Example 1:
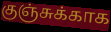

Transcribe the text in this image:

குஞ்சுக்காக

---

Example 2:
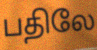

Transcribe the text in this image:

பதிலே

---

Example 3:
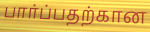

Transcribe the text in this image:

பார்ப்பதற்கான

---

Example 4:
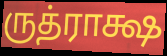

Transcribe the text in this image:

ருத்ராக்ஷ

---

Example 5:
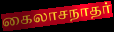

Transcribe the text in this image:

கைலாசநாதர்